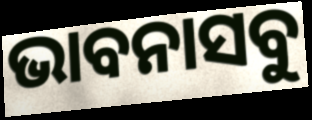
ଭାବନାସବୁ